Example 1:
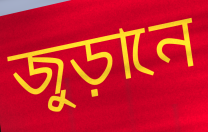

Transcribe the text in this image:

জুড়ানে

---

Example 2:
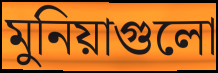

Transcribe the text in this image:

মুনিয়াগুলো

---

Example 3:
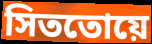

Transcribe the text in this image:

সিততোয়ে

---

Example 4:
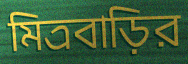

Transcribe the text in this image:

মিত্রবাড়ির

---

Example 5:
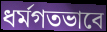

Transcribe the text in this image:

ধর্মগতভাবে